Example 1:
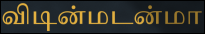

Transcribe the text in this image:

விடின்மடன்மா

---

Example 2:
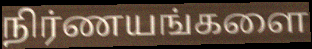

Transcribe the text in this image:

நிர்ணயங்களை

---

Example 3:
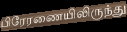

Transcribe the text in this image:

பிரேரணையிலிருந்து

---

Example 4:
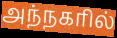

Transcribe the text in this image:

அந்நகரில்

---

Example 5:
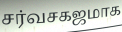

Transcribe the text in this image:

சர்வசகஜமாக